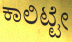
ಕಾಲಿಟ್ಟೇ